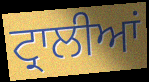
ਟ੍ਰਾਲੀਆਂ